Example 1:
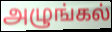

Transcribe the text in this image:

அழுங்கல்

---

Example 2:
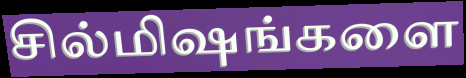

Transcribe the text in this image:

சில்மிஷங்களை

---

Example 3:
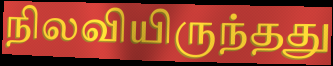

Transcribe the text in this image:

நிலவியிருந்தது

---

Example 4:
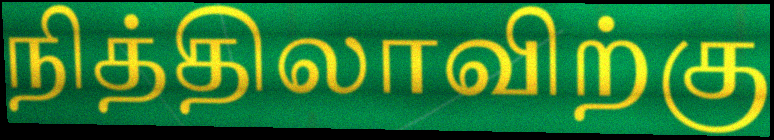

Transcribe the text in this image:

நித்திலாவிற்கு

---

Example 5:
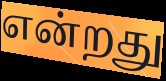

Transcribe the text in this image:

என்றது